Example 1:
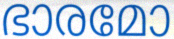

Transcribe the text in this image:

ഭാരമോ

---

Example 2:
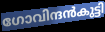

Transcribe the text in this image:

ഗോവിന്ദൻകുട്ടി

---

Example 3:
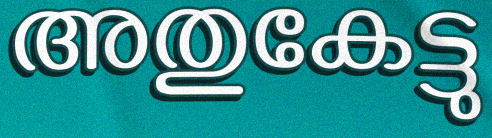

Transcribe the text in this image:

അതുകേട്ടു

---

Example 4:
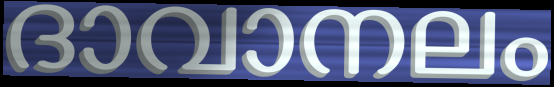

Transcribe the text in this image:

ദാവാനലം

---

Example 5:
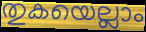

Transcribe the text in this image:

തുകയെല്ലാം